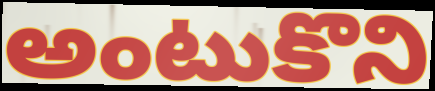
అంటుకొని